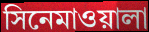
সিনেমাওয়ালা